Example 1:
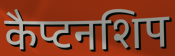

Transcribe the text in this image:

कैप्टनशिप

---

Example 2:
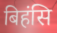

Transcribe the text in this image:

बिहंसि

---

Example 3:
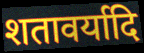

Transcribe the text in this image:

शतावर्यादि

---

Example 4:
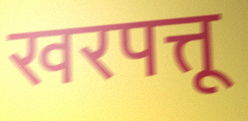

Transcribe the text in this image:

खरपत्तू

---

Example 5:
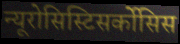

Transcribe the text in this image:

न्यूरोसिस्टिसर्कोसिस